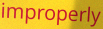
improperly